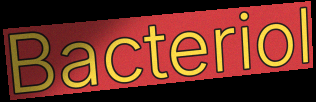
Bacteriol